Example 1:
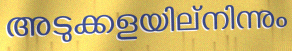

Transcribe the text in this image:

അടുക്കളയില്നിന്നും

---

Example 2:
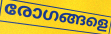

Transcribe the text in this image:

രോഗങ്ങളെ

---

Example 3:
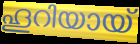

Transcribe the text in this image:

ഹൂറിയായ്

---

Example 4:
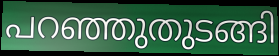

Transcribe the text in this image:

പറഞ്ഞുതുടങ്ങി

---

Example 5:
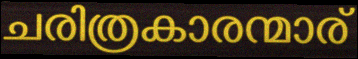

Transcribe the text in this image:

ചരിത്രകാരന്മാര്